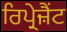
ਰਿਪ੍ਰੇਜ਼ੈਂਟ